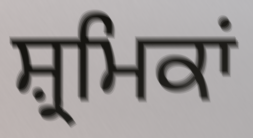
ਸ਼੍ਰਮਿਕਾਂ